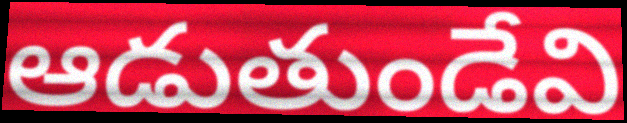
ఆడుతుండేవి